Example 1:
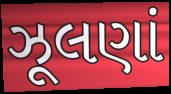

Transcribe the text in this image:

ઝૂલણાં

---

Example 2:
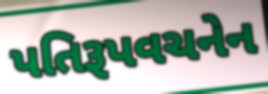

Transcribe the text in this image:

પતિરૂપવચનેન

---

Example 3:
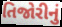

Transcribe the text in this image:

તિજોરીનું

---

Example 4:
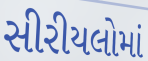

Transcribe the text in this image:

સીરીયલોમાં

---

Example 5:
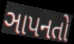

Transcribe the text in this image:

ઞાપનતો